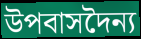
উপবাসদৈন্য